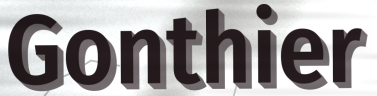
Gonthier